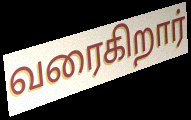
வரைகிறார்